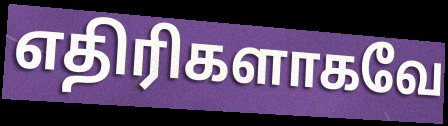
எதிரிகளாகவே